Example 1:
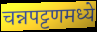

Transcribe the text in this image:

चन्नपट्टणमध्ये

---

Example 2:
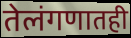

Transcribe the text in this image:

तेलंगणातही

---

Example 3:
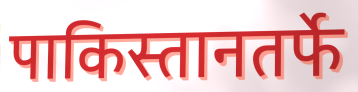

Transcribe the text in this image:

पाकिस्तानतर्फे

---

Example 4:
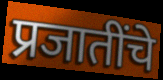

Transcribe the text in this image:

प्रजातींचे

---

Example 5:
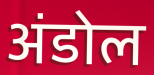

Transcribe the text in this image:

अंडोल